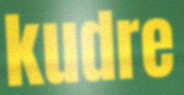
kudre